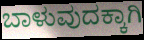
ಬಾಳುವುದಕ್ಕಾಗಿ